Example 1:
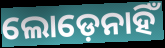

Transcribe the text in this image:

ଲୋଡ଼େନାହିଁ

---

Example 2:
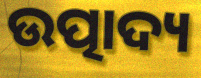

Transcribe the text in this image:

ଉତ୍ପାଦ୍ୟ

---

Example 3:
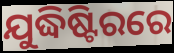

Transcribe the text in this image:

ଯୁଦ୍ଧିଷ୍ଟିରରେ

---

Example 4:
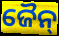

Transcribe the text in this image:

ଜୈନ୍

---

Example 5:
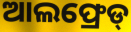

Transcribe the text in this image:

ଆଲଫ୍ରେଡ୍